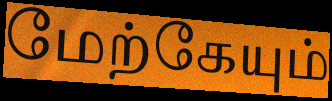
மேற்கேயும்